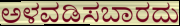
ಅಳವಡಿಸಬಾರದು